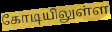
கோடியிலுள்ள